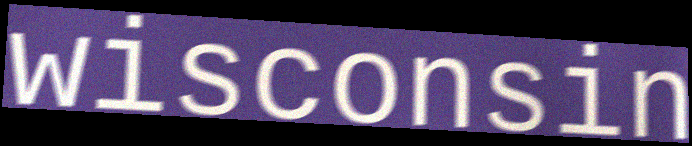
wisconsin